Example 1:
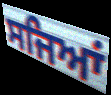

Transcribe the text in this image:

ਸਜਿਆਂ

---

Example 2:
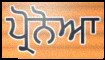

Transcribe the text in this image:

ਪ੍ਰੋਨੋਆ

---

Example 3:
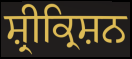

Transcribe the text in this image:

ਸ਼੍ਰੀਕ੍ਰਿਸ਼ਨ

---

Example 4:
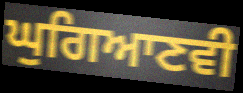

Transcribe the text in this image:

ਘੁਗਿਆਣਵੀ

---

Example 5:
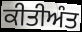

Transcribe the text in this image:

ਕੀਤੀਅੰਤ